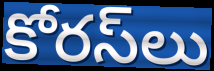
కోరస్‌లు